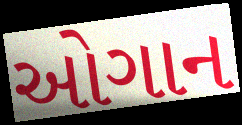
ઓગાન